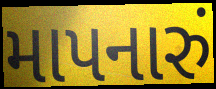
માપનારું